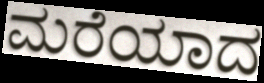
ಮರೆಯಾದ